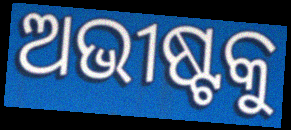
ଅଭୀଷ୍ଟକୁ